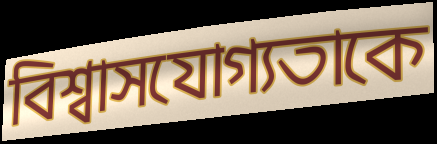
বিশ্বাসযোগ্যতাকে